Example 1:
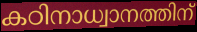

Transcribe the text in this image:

കഠിനാധ്വാനത്തിന്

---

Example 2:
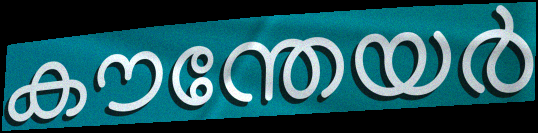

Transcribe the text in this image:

കൗന്തേയർ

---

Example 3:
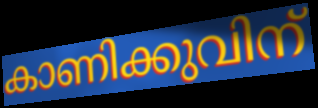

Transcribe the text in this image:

കാണിക്കുവിന്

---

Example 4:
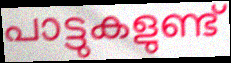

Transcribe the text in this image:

പാട്ടുകളുണ്ട്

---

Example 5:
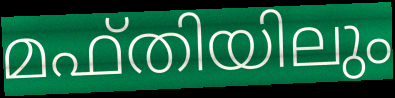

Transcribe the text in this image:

മഫ്തിയിലും